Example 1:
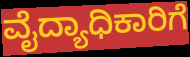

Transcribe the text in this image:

ವೈದ್ಯಾಧಿಕಾರಿಗೆ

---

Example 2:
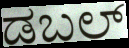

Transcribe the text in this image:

ಡಬಲ್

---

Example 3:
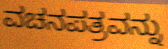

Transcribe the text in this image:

ವಚನಪತ್ರವನ್ನು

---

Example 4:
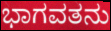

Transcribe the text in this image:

ಭಾಗವತನು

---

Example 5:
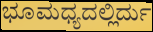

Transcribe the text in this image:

ಭೂಮಧ್ಯದಲ್ಲಿರ್ದು